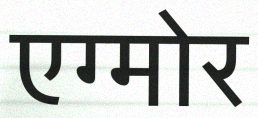
एग्मोर